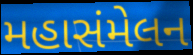
મહાસંમેલન